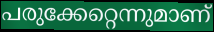
പരുക്കേറ്റെന്നുമാണ്